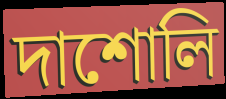
দাশোলি